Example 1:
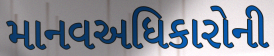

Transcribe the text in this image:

માનવઅધિકારોની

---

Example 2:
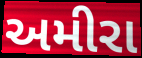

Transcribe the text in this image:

અમીરા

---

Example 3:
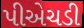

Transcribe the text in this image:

પીએચડી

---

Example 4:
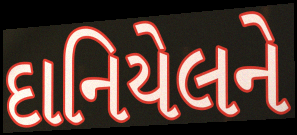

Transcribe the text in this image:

દાનિયેલને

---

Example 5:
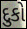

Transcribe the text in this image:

દુકો